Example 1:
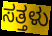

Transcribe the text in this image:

ಸತ್ತಳು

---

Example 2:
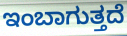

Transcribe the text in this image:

ಇಂಬಾಗುತ್ತದೆ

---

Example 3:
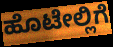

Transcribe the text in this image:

ಹೊಟೇಲ್ಲಿಗೆ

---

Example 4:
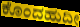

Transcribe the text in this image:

ಕೊಂದಹುದೀ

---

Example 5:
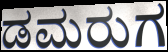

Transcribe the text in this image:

ಡಮರುಗ